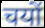
चयों